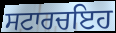
ਸਟਾਰਚਇਹ